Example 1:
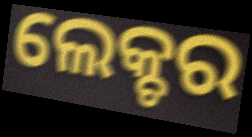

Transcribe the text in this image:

ଲେକ୍ଚର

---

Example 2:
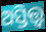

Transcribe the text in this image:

ଅସ୍ତିତ୍ତ୍ବ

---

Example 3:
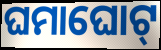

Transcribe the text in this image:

ଘମାଘୋଟ୍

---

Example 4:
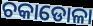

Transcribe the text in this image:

ଚକାଡୋଳା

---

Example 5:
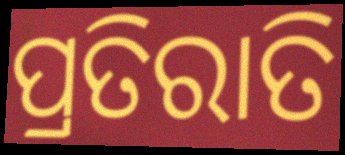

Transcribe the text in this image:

ପ୍ରତିରାତି